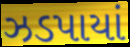
ઝડપાયાં